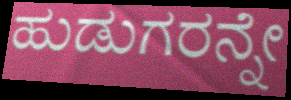
ಹುಡುಗರನ್ನೇ